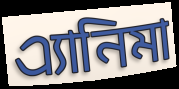
এ্যানিমা